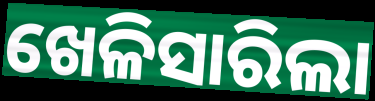
ଖେଳିସାରିଲା